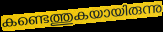
കണ്ടെത്തുകയായിരുന്നു